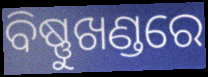
ବିଷ୍ଣୁଖଣ୍ଡରେ